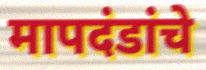
मापदंडांचे